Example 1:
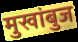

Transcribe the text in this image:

मुखांबुज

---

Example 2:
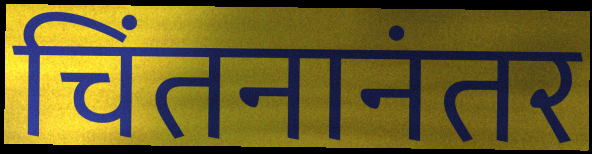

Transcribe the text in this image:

चिंतनानंतर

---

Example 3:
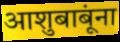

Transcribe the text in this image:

आशुबाबूंना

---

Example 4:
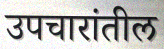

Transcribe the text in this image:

उपचारांतील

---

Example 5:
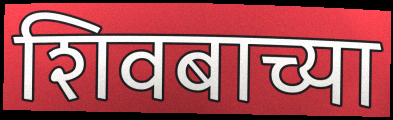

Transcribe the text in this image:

शिवबाच्या